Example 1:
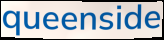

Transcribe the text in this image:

queenside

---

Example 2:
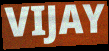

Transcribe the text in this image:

VIJAY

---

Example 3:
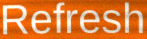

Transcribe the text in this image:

Refresh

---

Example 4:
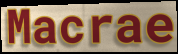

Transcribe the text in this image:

Macrae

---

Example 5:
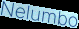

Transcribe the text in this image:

Nelumbo